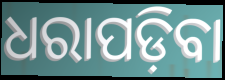
ଧରାପଡ଼ିବା